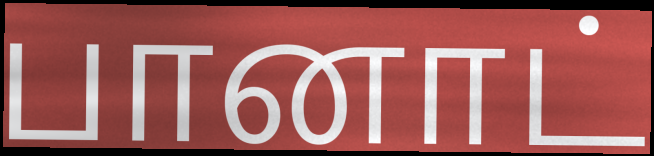
பானாட்